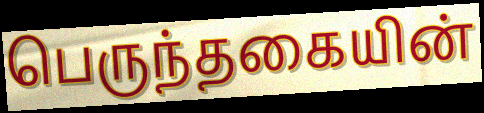
பெருந்தகையின்